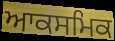
ਆਕਸਮਿਕ